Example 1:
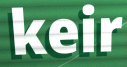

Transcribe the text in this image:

keir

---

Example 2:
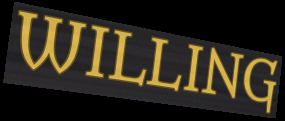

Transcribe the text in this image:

WILLING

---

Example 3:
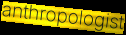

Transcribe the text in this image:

anthropologist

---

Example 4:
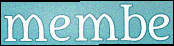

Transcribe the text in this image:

membe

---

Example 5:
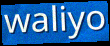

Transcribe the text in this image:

waliyo